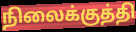
நிலைக்குத்தி